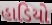
હાડિયો